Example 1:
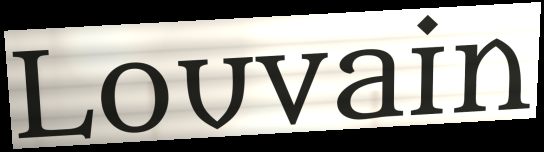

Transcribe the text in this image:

Louvain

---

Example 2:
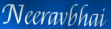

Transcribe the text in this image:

Neeravbhai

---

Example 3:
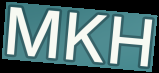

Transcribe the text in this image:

MKH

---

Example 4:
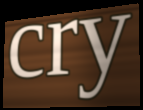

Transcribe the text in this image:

cry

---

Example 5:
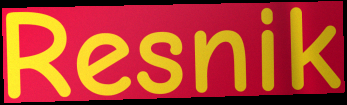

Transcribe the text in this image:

Resnik